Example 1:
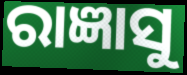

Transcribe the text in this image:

ରାଜ୍ଞାସୁ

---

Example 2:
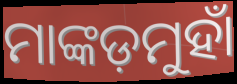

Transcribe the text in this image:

ମାଙ୍କଡ଼ମୁହାଁ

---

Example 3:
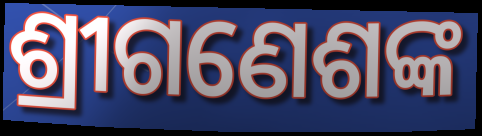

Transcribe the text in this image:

ଶ୍ରୀଗଣେଶଙ୍କ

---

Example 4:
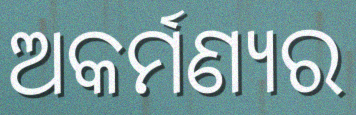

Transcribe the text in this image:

ଅକର୍ମଣ୍ୟର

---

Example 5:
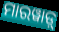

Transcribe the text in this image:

ମାରୱାଡ଼୍